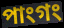
পাংগং